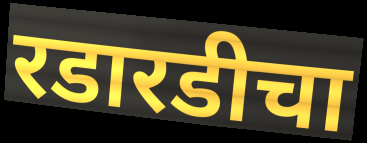
रडारडीचा